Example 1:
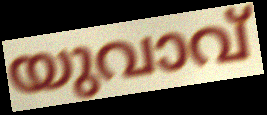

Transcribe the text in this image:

യുവാവ്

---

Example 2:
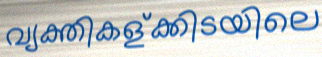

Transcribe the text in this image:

വ്യക്തികള്ക്കിടയിലെ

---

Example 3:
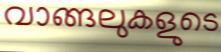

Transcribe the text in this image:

വാങ്ങലുകളുടെ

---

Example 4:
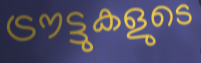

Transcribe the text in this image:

ട്രൗട്ടുകളുടെ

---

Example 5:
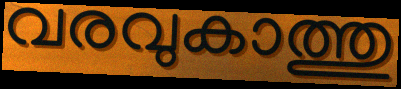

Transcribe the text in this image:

വരവുകാത്തു